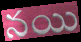
నయి